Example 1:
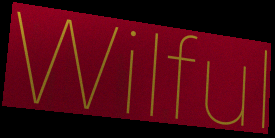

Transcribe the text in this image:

Wilful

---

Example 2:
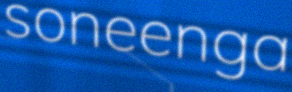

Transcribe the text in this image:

soneenga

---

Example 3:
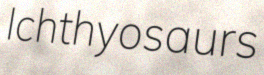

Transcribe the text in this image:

Ichthyosaurs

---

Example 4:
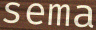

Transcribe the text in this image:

sema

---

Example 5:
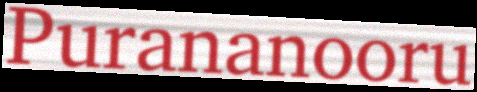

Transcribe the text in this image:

Purananooru